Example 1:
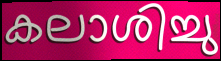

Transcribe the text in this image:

കലാശിച്ചു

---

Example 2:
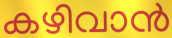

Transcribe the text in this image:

കഴിവാൻ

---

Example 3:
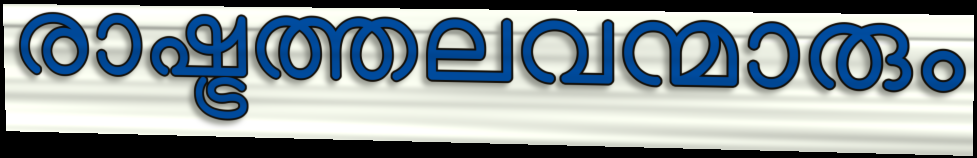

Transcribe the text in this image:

രാഷ്ട്രത്തലവന്മാരും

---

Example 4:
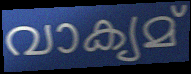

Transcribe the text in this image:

വാക്യമ്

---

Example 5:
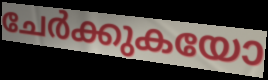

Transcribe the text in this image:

ചേർക്കുകയോ